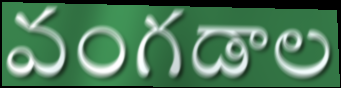
వంగడాల